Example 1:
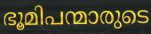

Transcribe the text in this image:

ഭൂമിപന്മാരുടെ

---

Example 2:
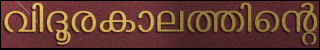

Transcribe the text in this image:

വിദൂരകാലത്തിന്റെ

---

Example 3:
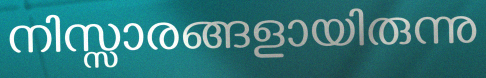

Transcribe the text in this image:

നിസ്സാരങ്ങളായിരുന്നു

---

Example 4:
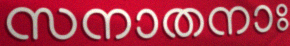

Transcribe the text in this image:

സനാതനാഃ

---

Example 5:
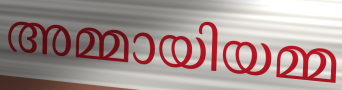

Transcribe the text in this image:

അമ്മായിയമ്മ